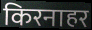
किरनाहर